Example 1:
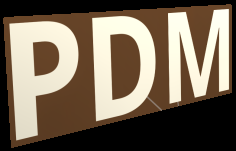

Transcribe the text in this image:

PDM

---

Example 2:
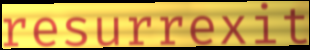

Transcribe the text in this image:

resurrexit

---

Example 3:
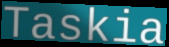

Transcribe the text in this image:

Taskia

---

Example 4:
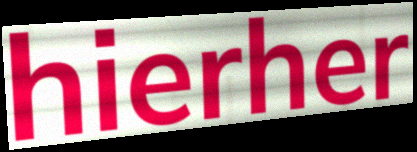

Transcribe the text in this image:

hierher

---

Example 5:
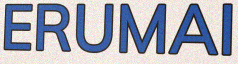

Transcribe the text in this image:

ERUMAI